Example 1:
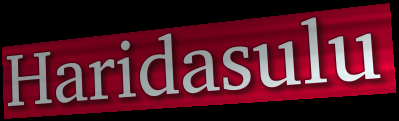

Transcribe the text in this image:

Haridasulu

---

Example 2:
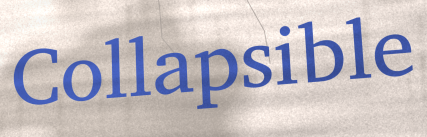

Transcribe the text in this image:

Collapsible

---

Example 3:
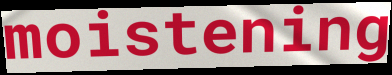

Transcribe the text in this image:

moistening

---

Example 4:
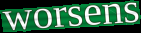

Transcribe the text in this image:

worsens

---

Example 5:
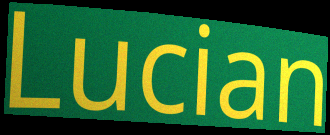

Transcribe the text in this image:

Lucian